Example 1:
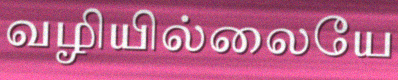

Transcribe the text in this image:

வழியில்லையே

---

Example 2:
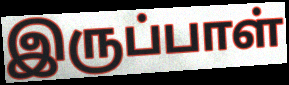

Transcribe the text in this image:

இருப்பாள்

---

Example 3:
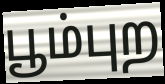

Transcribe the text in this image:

பூம்புற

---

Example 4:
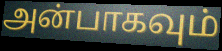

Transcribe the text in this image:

அன்பாகவும்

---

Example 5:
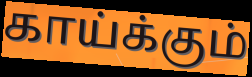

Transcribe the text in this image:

காய்க்கும்